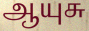
ஆயுசு